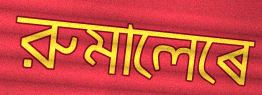
ৰুমালেৰে